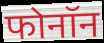
फोनॉन